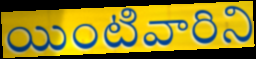
యింటివారిని